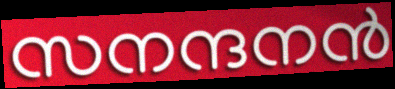
സനന്ദനൻ